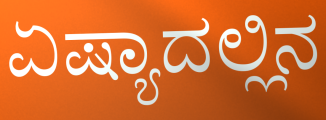
ಏಷ್ಯಾದಲ್ಲಿನ